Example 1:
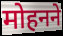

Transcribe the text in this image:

मोहनने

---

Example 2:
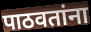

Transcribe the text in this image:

पाठवतांना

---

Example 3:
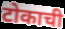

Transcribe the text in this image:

टोकाची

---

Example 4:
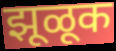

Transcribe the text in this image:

झूळूक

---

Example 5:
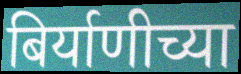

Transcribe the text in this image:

बिर्याणीच्या